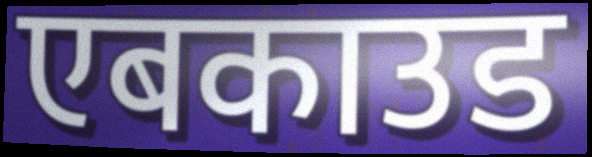
एबकाउड